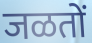
जळतों